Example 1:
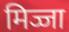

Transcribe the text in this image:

मिज्जा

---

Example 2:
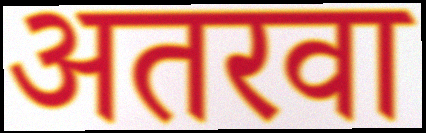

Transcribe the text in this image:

अतरवा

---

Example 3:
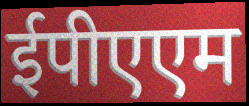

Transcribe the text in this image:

ईपीएएम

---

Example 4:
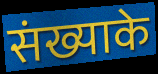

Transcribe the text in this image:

संख्याके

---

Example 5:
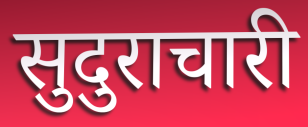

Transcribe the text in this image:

सुदुराचारी